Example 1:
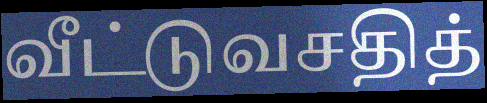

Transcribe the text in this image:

வீட்டுவசதித்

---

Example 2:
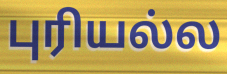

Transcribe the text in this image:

புரியல்ல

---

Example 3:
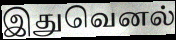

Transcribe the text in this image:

இதுவெனல்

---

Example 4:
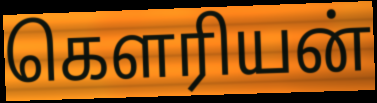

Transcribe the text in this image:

கௌரியன்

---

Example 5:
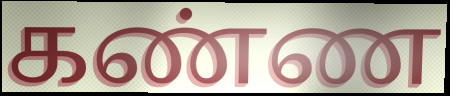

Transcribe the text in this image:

கண்ண